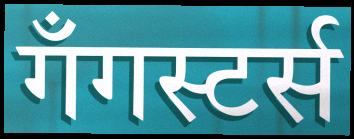
गँगस्टर्स